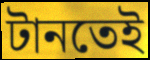
টানতেই